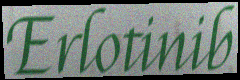
Erlotinib